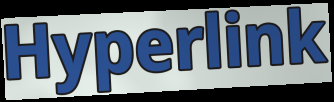
Hyperlink